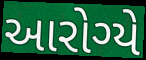
આરોગ્યે